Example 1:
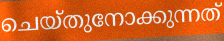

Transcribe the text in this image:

ചെയ്തുനോക്കുന്നത്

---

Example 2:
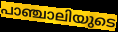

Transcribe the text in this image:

പാഞ്ചാലിയുടെ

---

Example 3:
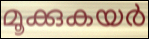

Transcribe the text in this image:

മൂക്കുകയർ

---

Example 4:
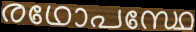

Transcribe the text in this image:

രഥോപസ്ഥേ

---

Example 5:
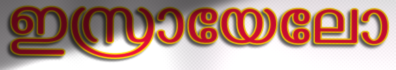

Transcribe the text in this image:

ഇസ്രായേലോ